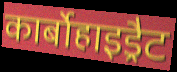
कार्बोहाइड्रैट